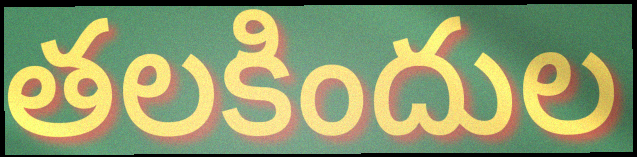
తలకిందుల